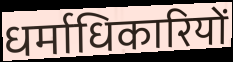
धर्माधिकारियों